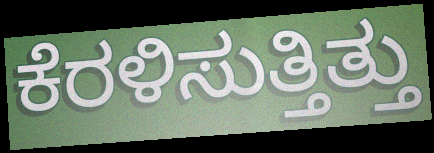
ಕೆರಳಿಸುತ್ತಿತ್ತು